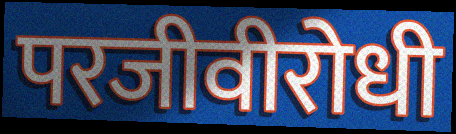
परजीवीरोधी